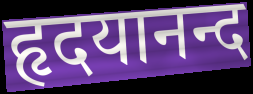
हृदयानन्द